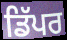
ਡਿੱਪਰ